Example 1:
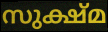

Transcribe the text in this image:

സുക്ഷ്മ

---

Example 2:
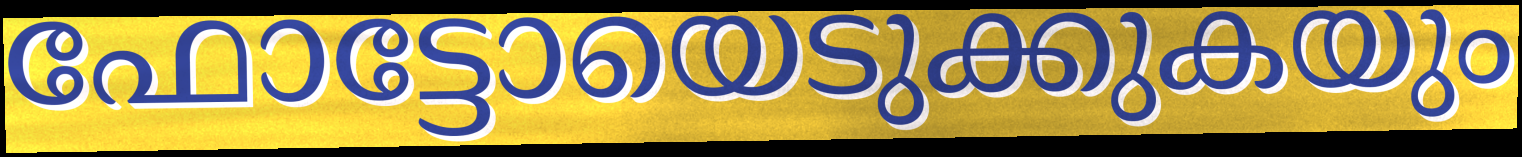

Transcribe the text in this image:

ഫോട്ടോയെടുക്കുകയും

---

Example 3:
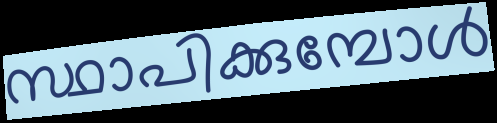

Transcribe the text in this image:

സ്ഥാപിക്കുമ്പോൾ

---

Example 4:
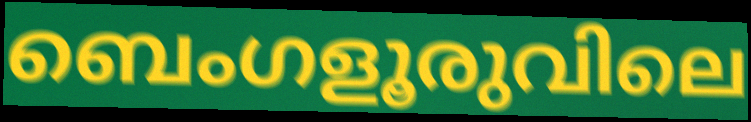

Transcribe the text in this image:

ബെംഗളൂരുവിലെ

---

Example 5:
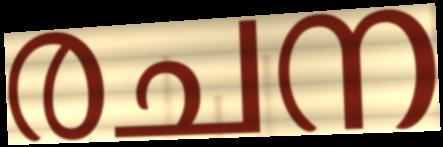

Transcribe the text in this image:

രചന